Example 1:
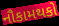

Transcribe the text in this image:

નૌકામથકો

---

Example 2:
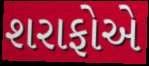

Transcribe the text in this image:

શરાફોએ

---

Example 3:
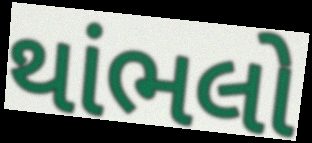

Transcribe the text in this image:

થાંભલો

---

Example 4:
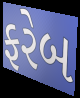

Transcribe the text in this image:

ફરેબ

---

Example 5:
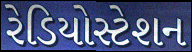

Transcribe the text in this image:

રેડિયોસ્ટેશન